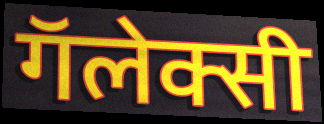
गॅलेक्सी